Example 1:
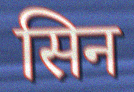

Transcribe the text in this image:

सिन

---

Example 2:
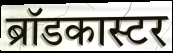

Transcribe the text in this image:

ब्रॉडकास्टर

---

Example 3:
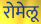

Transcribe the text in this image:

रोमेलू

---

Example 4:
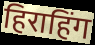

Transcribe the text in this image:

हिराहिंग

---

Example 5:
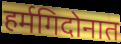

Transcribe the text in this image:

हर्मगिदोनात